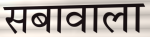
सबावाला